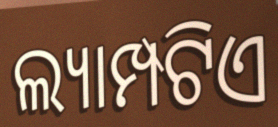
ଲ୍ୟାମ୍ପଟିଏ